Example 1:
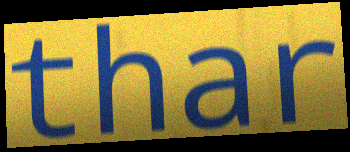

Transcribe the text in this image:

thar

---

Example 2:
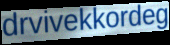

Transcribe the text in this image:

drvivekkordeg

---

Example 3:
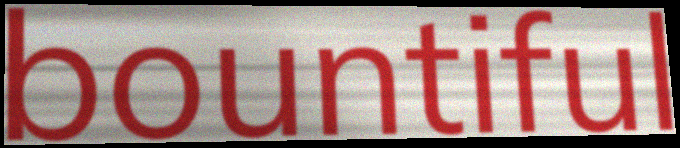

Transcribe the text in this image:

bountiful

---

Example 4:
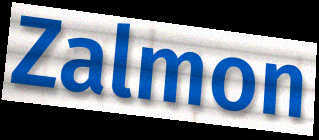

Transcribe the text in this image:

Zalmon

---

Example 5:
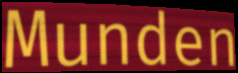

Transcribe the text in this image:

Munden